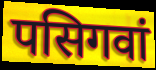
पसिगवां